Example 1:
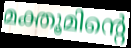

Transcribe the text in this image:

മക്തൂമിന്റെ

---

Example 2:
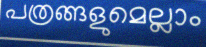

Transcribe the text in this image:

പത്രങ്ങളുമെല്ലാം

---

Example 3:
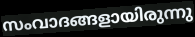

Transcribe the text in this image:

സംവാദങ്ങളായിരുന്നു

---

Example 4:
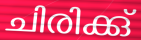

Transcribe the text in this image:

ചിരിക്കു്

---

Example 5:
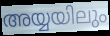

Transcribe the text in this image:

അയ്യയിലും